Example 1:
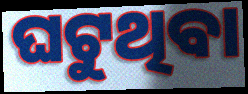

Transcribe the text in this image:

ଘଟୁଥିବା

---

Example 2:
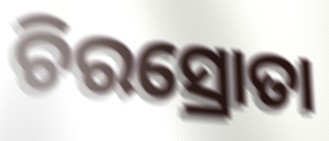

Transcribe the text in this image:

ଚିରସ୍ରୋତା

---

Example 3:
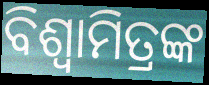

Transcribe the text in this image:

ବିଶ୍ଵାମିତ୍ରଙ୍କ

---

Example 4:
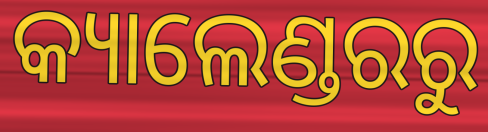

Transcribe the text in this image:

କ୍ୟାଲେଣ୍ଡରରୁ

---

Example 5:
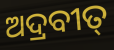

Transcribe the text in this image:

ଅଦ୍ରବୀତ୍